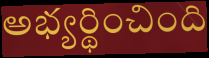
అభ్యర్థించింది